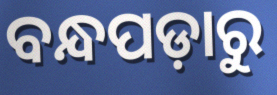
ବନ୍ଧପଡ଼ାରୁ